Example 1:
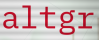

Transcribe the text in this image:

altgr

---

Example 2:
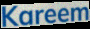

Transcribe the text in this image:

Kareem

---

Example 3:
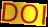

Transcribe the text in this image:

DOI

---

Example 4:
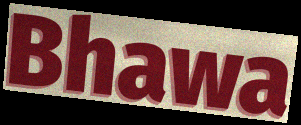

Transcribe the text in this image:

Bhawa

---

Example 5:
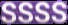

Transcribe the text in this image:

SSSS